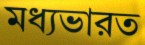
মধ্যভারত